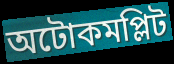
অটোকমপ্লিট